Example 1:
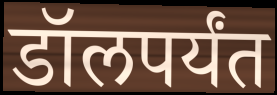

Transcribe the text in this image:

डॉलपर्यंत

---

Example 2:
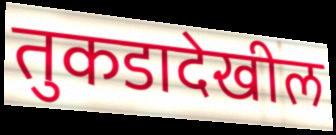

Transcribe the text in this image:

तुकडादेखील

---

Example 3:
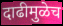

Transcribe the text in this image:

दाढीमुळेच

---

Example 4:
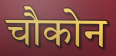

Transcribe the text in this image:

चौकोन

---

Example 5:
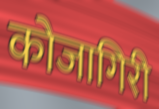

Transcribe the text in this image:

कोजागिरी